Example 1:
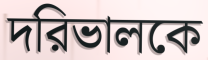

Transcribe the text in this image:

দরিভালকে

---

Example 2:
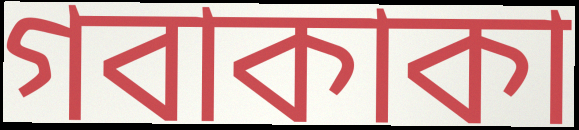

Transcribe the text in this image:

গবাকাকা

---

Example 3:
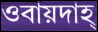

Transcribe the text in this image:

ওবায়দাহ্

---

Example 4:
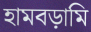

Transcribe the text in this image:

হামবড়ামি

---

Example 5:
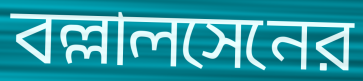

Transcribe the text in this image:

বল্লালসেনের